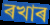
ৰখাৰ